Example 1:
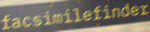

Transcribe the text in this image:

facsimilefinder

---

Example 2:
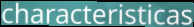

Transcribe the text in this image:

characteristicas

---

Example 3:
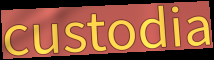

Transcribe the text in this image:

custodia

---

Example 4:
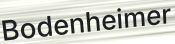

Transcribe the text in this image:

Bodenheimer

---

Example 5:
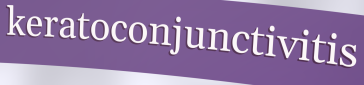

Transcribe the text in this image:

keratoconjunctivitis